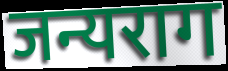
जन्यराग